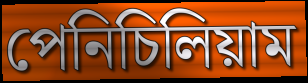
পেনিচিলিয়াম